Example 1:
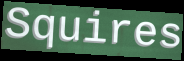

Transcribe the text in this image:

Squires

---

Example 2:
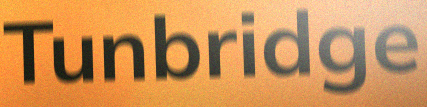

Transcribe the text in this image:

Tunbridge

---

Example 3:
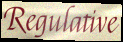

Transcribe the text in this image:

Regulative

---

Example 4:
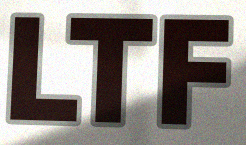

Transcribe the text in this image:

LTF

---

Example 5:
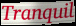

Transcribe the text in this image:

Tranquil